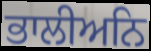
ਭਾਲੀਅਨਿ